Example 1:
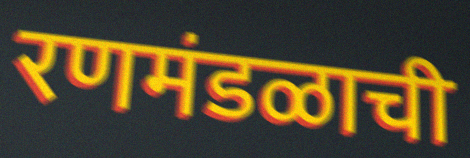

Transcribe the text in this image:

रणमंडळाची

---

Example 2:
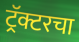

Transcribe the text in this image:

ट्रॅक्टरचा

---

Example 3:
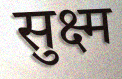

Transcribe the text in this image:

सुक्ष्म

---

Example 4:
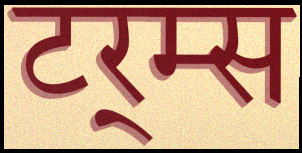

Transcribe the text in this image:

टर्म्स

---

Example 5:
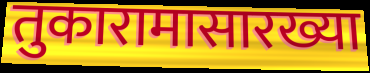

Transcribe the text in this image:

तुकारामासारख्या